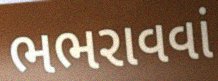
ભભરાવવાં